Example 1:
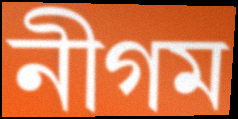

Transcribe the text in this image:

নীগম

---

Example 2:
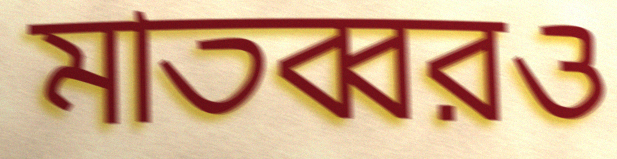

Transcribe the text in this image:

মাতব্বরও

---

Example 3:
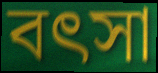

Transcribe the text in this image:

বৎসা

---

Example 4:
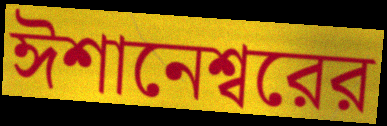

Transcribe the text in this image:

ঈশানেশ্বরের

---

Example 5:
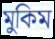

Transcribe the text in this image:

মুকিম